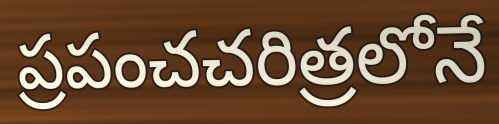
ప్రపంచచరిత్రలోనే